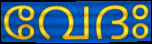
വേദഃ